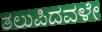
ತಲುಪಿದವಳೇ